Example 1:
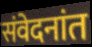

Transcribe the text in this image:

संवेदनांत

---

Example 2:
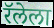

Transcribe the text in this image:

रॅलेला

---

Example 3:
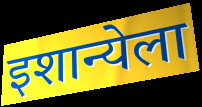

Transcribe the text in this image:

इशान्येला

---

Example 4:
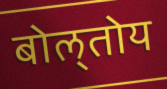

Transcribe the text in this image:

बोल्तोय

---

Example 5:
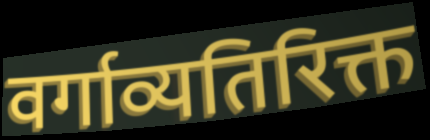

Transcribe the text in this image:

वर्गाव्यतिरिक्त